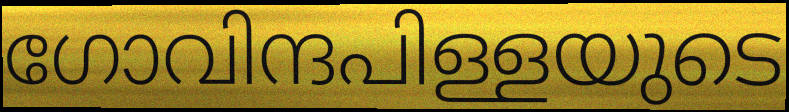
ഗോവിന്ദപിള്ളയുടെ